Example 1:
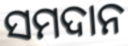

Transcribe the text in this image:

ସମଦାନ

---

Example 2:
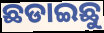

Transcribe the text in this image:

ଛଡାଇଛୁ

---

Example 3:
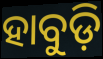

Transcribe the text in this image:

ହାବୁଡ଼ି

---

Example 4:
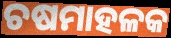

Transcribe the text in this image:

ଚଷମାହଳକ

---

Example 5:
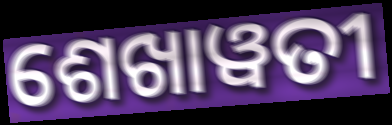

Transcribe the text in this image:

ଶେଖାୱତୀ